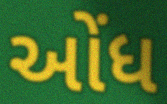
ઓંધ